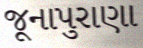
જૂનાપુરાણા